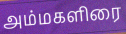
அம்மகளிரை